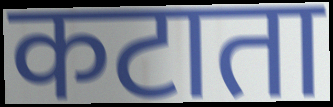
कटाता